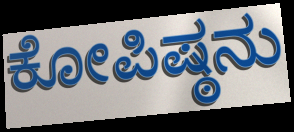
ಕೋಪಿಷ್ಠನು